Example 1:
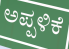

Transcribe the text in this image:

ಅಪ್ಪಳಿಕೆ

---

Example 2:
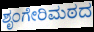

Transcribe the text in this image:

ಶೃಂಗೇರಿಮಠದ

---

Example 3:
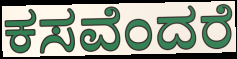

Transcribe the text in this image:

ಕಸವೆಂದರೆ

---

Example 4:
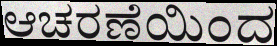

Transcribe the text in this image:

ಆಚರಣೆಯಿಂದ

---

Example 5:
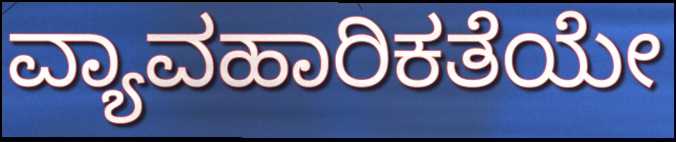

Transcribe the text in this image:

ವ್ಯಾವಹಾರಿಕತೆಯೇ